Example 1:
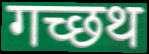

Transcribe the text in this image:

गच्छथ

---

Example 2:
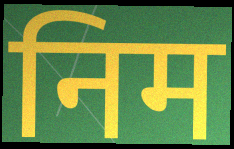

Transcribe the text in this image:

निम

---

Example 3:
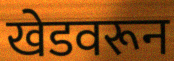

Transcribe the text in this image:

खेडवरून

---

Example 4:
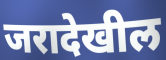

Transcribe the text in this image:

जरादेखील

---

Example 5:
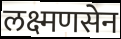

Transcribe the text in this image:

लक्ष्मणसेन